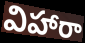
విహారా